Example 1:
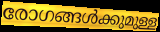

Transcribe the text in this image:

രോഗങ്ങൾക്കുമുള്ള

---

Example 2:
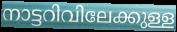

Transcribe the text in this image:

നാട്ടറിവിലേക്കുള്ള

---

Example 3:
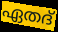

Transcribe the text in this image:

ഏതദ്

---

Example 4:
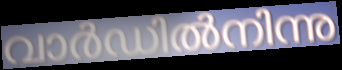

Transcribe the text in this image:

വാർഡിൽനിന്നു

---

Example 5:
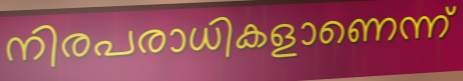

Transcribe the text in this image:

നിരപരാധികളാണെന്ന്